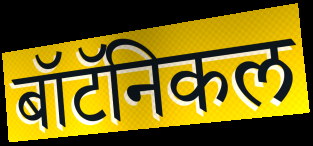
बॉटॅनिकल